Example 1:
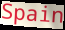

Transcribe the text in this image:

Spain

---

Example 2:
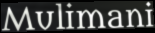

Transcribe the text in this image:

Mulimani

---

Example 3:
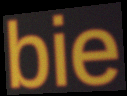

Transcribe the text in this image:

bie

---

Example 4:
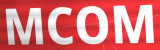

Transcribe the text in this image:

MCOM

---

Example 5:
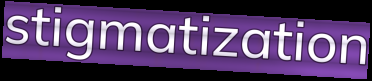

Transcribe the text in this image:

stigmatization